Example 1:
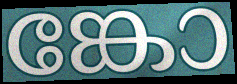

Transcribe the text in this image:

ങ്കോ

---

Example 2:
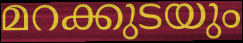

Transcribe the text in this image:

മറക്കുടയും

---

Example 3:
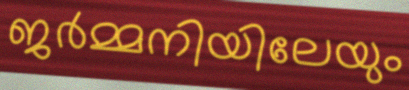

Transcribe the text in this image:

ജർമ്മനിയിലേയും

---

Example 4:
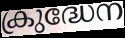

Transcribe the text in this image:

ക്രുദ്ധേന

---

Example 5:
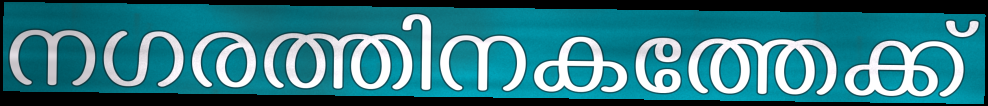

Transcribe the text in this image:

നഗരത്തിനകത്തേക്ക്